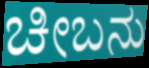
ಚೀಬನು